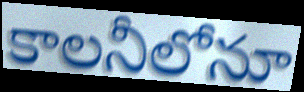
కాలనీలోనూ